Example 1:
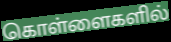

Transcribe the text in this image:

கொள்ளைகளில்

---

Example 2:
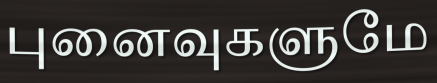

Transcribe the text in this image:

புனைவுகளுமே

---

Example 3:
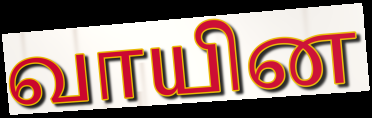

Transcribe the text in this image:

வாயின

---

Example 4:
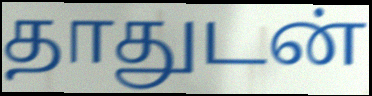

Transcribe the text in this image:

தாதுடன்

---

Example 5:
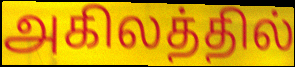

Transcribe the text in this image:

அகிலத்தில்